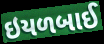
ઇયળબાઈ